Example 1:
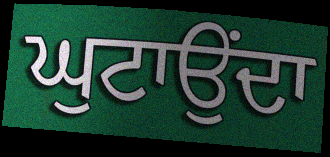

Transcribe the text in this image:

ਘੁਟਾਉਂਦਾ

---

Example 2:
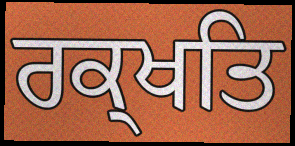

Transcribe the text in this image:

ਰਕ੍ਖਤਿ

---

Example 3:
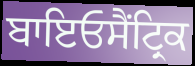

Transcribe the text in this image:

ਬਾਇਓਸੈਂਟ੍ਰਿਕ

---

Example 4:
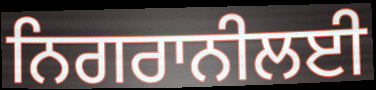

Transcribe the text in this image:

ਨਿਗਰਾਨੀਲਈ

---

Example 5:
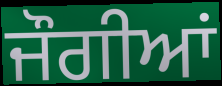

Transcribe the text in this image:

ਜੌਗੀਆਂ